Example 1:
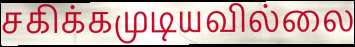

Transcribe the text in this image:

சகிக்கமுடியவில்லை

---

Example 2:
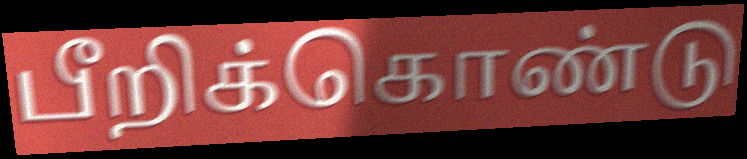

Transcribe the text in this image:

பீறிக்கொண்டு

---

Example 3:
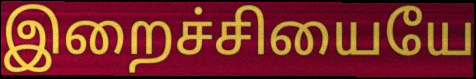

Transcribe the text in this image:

இறைச்சியையே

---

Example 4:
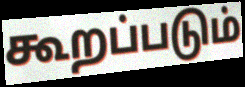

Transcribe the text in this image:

கூறப்படும்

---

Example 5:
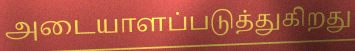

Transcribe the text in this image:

அடையாளப்படுத்துகிறது